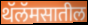
थॅलॅमसातील